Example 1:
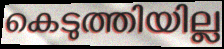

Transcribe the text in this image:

കെടുത്തിയില്ല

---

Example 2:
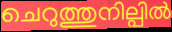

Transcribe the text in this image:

ചെറുത്തുനില്പിൽ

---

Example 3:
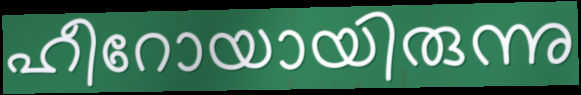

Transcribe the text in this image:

ഹീറോയായിരുന്നു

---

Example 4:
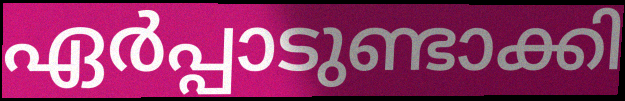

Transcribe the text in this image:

ഏർപ്പാടുണ്ടാക്കി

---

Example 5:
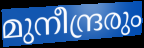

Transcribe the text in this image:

മുനീന്ദ്രരും